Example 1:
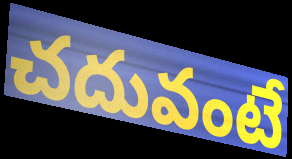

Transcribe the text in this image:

చదువంటే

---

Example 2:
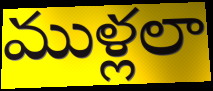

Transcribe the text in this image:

ముళ్లలా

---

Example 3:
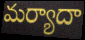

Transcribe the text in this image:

మర్యాదా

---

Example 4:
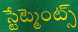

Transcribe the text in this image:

స్టేట్మెంట్స్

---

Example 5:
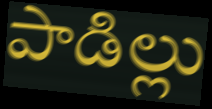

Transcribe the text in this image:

పాడిల్లు